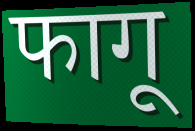
फागू